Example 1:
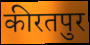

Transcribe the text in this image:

कीरतपुर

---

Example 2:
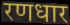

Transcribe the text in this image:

रणधार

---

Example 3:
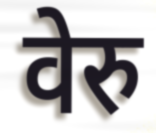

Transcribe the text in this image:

वेरु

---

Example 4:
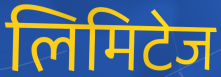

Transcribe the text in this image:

लिमिटेज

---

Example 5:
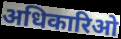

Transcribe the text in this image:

अधिकारिओ